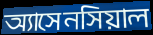
অ্যাসেনসিয়াল